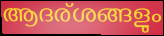
ആദര്ശങ്ങളും